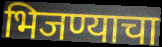
भिजण्याचा